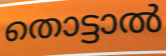
തൊട്ടാൽ